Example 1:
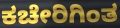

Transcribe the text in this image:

ಕಚೇರಿಗಿಂತ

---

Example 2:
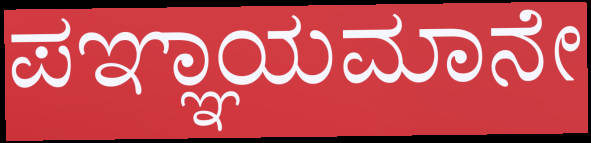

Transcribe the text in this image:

ಪಞ್ಞಾಯಮಾನೇ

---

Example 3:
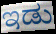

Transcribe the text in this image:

ಇಡು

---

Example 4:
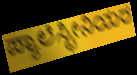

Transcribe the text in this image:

ಪ್ಯಾಲೆಸ್ಟೀನಿಯರ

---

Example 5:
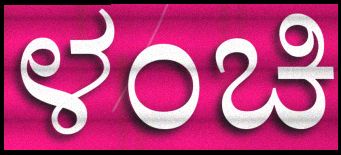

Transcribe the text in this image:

ಳಂಚಿ